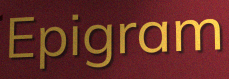
Epigram